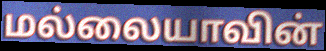
மல்லையாவின்